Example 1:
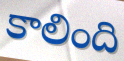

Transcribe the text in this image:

కాలింది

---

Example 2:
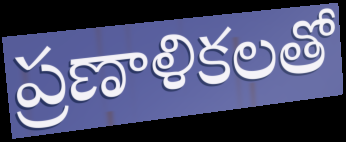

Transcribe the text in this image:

ప్రణాళికలతో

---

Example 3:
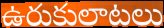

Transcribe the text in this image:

ఉరుకులాటలు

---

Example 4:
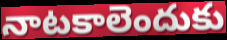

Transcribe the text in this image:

నాటకాలెందుకు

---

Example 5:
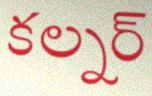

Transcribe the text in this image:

కల్నర్